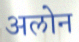
अलोन